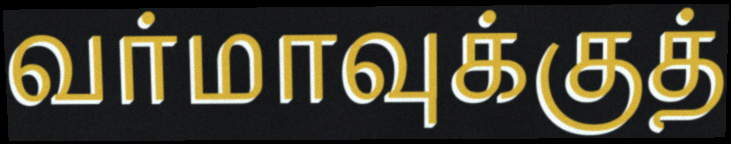
வர்மாவுக்குத்